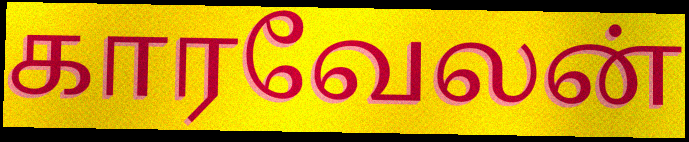
காரவேலன்